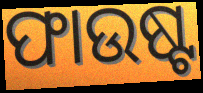
ଫାଉଷ୍ଟ